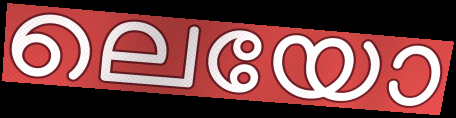
ലെയോ